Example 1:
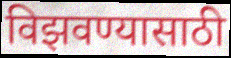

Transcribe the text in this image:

विझवण्यासाठी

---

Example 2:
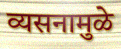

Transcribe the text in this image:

व्यसनामुळे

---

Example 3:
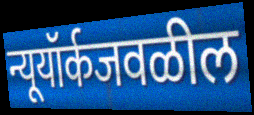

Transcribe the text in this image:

न्यूयॉर्कजवळील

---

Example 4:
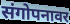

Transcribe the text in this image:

संगोपनावर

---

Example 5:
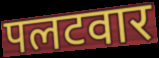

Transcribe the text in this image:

पलटवार